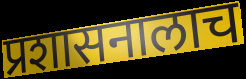
प्रशासनालाच